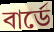
বার্ডে